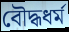
বৌদ্ধধৰ্ম